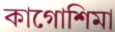
কাগোশিমা